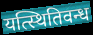
यत्स्थितिवन्ध